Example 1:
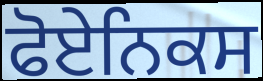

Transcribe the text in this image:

ਫੋਏਨਿਕਸ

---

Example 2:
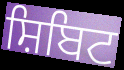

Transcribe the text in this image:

ਸ਼ਿਬਿਟ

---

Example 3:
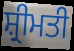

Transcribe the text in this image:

ਸ਼੍ਰੀਮਤੀ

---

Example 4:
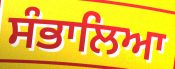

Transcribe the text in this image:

ਸੰਭਾਲਿਆ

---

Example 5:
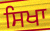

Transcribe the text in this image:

ਸਿਖਾ